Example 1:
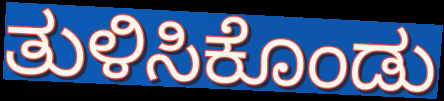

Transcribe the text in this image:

ತುಳಿಸಿಕೊಂಡು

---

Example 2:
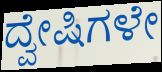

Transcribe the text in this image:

ದ್ವೇಷಿಗಳೇ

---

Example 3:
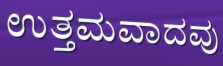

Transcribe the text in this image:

ಉತ್ತಮವಾದವು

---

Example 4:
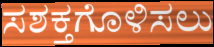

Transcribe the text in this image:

ಸಶಕ್ತಗೊಳಿಸಲು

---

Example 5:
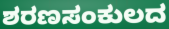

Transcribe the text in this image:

ಶರಣಸಂಕುಲದ